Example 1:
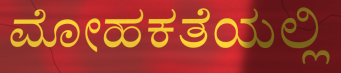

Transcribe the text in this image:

ಮೋಹಕತೆಯಲ್ಲಿ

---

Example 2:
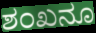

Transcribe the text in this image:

ಶಂಖನೂ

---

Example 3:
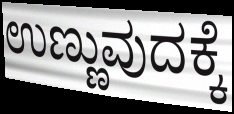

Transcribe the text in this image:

ಉಣ್ಣುವುದಕ್ಕೆ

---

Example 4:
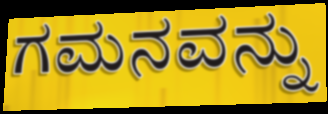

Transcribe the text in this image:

ಗಮನವನ್ನು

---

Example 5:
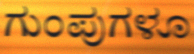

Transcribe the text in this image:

ಗುಂಪುಗಳೂ